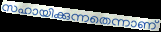
സഹായിക്കുന്നതെന്നാണ്